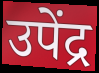
उपेंद्र